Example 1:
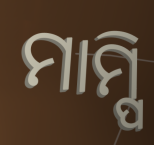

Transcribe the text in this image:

ମାମ୍ପି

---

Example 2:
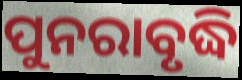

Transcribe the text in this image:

ପୁନରାବୃଦ୍ଧି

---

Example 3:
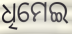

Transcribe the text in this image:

ଧିମେଇ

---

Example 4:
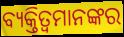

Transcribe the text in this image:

ବ୍ୟକ୍ତିତ୍ୱମାନଙ୍କର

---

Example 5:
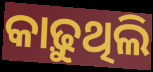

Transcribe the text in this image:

କାଢ଼ୁଥିଲି